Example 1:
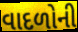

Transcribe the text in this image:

વાદળોની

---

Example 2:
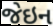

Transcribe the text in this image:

જેઇન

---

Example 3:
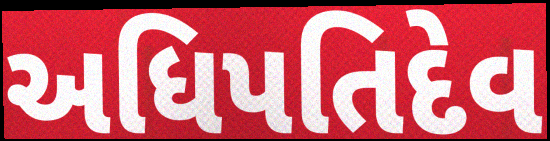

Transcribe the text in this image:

અધિપતિદેવ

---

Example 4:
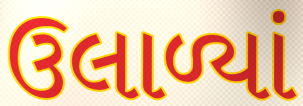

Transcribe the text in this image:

ઉલાળ્યાં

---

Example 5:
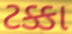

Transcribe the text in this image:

ટક્કા